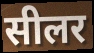
सीलर